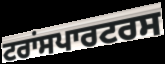
ਟਰਾਂਸਪਾਰਟਰਸ